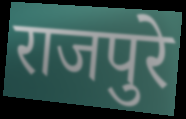
राजपुरे